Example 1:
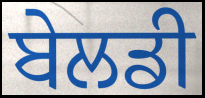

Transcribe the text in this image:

ਬੇਲਡੀ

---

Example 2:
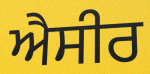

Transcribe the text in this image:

ਐਸੀਰ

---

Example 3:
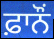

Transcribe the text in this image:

ਫ਼ਾਨੌਂ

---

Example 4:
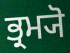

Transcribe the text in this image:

ਭ੍ਰਮ੍ਯੋ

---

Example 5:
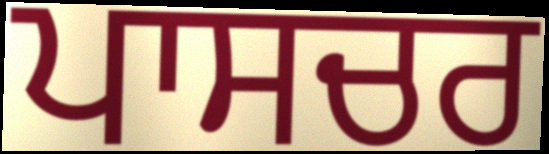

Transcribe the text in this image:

ਪਾਸਚਰ